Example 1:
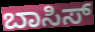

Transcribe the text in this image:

ಬಾಸಿಸ್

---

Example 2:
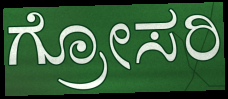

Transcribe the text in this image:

ಗ್ರೋಸರಿ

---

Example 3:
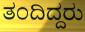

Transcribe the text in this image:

ತಂದಿದ್ದರು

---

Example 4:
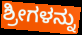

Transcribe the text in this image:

ಶ್ರೀಗಳನ್ನು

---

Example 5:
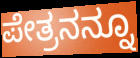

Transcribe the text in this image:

ಪೇತ್ರನನ್ನೂ